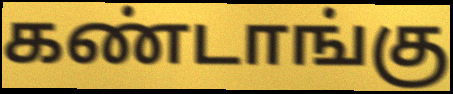
கண்டாங்கு